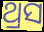
ଥ୍ରସ